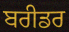
ਬਰੀਡਰ